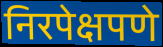
निरपेक्षपणे